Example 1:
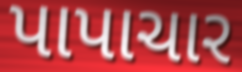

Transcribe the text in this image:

પાપાચાર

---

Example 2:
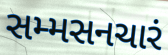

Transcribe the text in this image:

સમ્મસનચારં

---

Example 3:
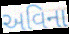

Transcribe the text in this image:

અવિના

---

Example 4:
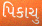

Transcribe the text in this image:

પિકાચુ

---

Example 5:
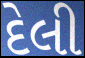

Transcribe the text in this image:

દેલી